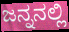
ಜನ್ನನಲ್ಲಿ